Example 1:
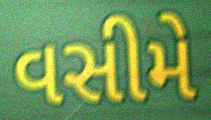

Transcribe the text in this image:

વસીમે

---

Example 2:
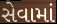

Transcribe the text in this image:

સેવામાં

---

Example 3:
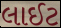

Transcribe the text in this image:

લાઈટ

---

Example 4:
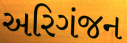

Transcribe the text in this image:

અરિગંજન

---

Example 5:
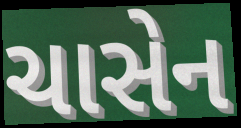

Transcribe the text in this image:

ચાસેન